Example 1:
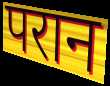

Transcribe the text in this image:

परान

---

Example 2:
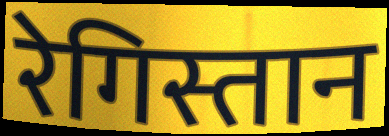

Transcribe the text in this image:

रेगिस्तान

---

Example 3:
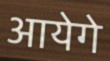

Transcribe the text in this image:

आयेगे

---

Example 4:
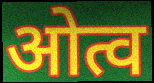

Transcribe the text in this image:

ओत्व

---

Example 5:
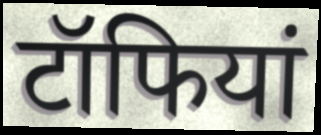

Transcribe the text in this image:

टॉफियां